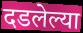
दडलेल्या